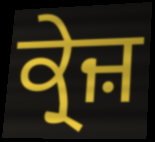
ਕ੍ਰੇਜ਼